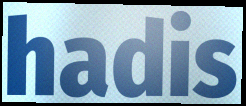
hadis